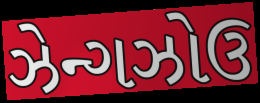
ઝેન્ગઝોઉ